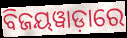
ବିଜୟୱାଡ଼ାରେ